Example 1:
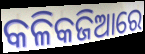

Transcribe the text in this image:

କଳିକଜିଆରେ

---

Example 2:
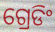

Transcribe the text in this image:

ଗ୍ରେଡିଂ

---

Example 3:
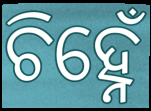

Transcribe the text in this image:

ଚିହ୍ନେଁ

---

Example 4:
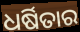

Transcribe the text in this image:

ଧର୍ଷିତାର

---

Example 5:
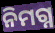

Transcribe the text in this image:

ନିମଗ୍ନ